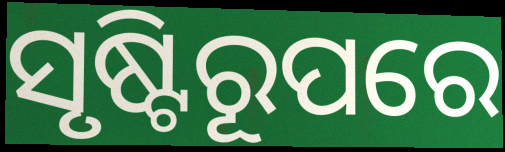
ସୃଷ୍ଟିରୂପରେ